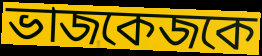
ভাজকেজকে